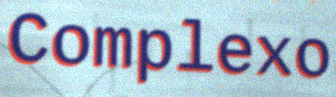
Complexo